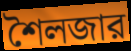
শৈলজার